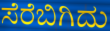
ಸೆರೆಬಿಗಿದು